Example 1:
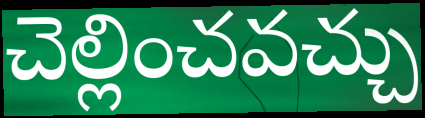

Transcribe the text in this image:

చెల్లించవచ్చు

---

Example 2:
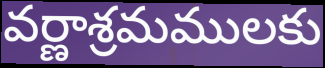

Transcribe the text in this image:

వర్ణాశ్రమములకు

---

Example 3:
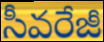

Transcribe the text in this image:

సీవరేజీ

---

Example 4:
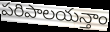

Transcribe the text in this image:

పరిపాలయన్తాం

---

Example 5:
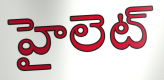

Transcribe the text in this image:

హైలెట్